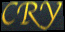
CRY